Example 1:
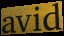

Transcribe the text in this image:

avid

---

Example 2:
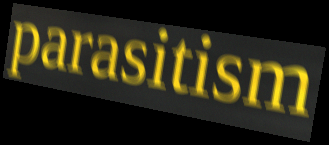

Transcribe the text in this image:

parasitism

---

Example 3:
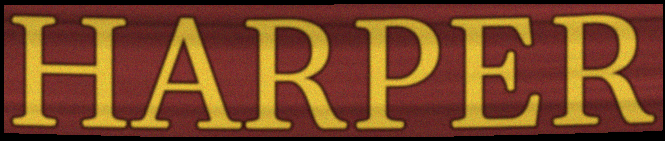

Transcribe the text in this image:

HARPER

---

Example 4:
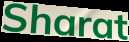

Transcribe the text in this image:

Sharat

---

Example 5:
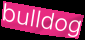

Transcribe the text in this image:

bulldog